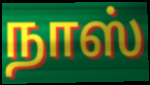
நாஸ்